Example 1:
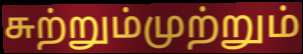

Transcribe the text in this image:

சுற்றும்முற்றும்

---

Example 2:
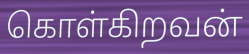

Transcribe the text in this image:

கொள்கிறவன்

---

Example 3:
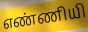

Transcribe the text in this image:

எண்ணியி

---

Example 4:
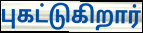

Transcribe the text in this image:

புகட்டுகிறார்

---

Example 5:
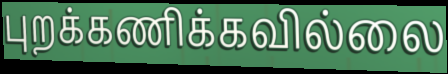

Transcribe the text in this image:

புறக்கணிக்கவில்லை